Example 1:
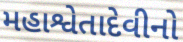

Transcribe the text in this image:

મહાશ્વેતાદેવીનો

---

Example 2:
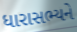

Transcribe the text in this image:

ધારાસભ્યને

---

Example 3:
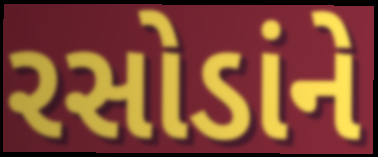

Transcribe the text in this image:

રસોડાંને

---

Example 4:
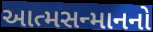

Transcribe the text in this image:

આત્મસન્માનનો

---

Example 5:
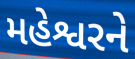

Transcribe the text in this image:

મહેશ્વરને